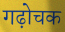
गढ़ोचक